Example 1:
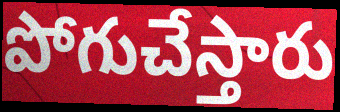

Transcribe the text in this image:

పోగుచేస్తారు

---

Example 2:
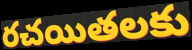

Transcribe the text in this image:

రచయితలకు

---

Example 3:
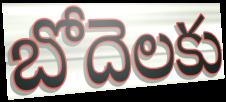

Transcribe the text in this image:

బోదెలకు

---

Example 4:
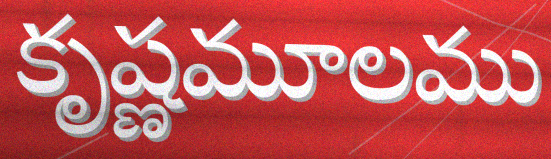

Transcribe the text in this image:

కృష్ణమూలము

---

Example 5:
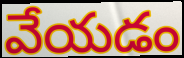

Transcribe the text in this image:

వేయడం